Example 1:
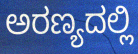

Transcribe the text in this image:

ಅರಣ್ಯದಲ್ಲಿ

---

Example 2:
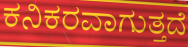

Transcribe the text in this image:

ಕನಿಕರವಾಗುತ್ತದೆ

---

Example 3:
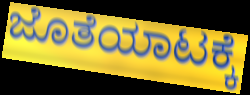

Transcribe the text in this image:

ಜೊತೆಯಾಟಕ್ಕೆ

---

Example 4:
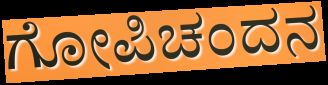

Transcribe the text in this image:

ಗೋಪಿಚಂದನ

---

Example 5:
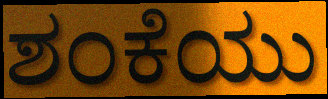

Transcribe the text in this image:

ಶಂಕೆಯು